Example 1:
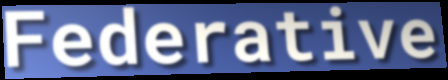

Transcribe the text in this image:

Federative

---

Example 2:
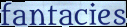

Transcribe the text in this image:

fantacies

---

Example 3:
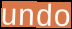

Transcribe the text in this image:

undo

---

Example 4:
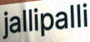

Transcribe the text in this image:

jallipalli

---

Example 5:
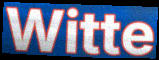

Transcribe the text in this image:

Witte